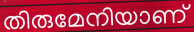
തിരുമേനിയാണ്